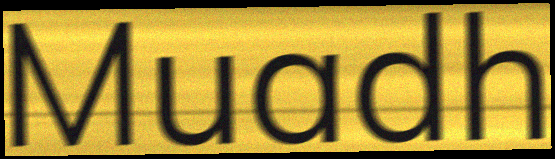
Muadh